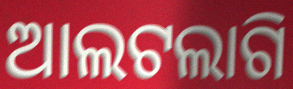
ଆଲଟଲାଗି